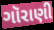
ગૉરાણી